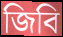
জিবি